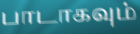
பாடாகவும்